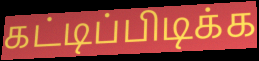
கட்டிப்பிடிக்க